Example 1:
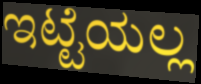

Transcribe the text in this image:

ಇಟ್ಟೆಯಲ್ಲ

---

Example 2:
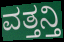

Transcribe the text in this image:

ವತ್ತನ್ತಿ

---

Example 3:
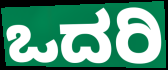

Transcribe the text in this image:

ಒದರಿ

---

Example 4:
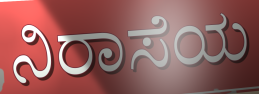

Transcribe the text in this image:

ನಿರಾಸೆಯ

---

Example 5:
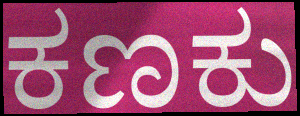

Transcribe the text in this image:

ಕಣಕು